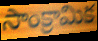
సాంక్రామిక